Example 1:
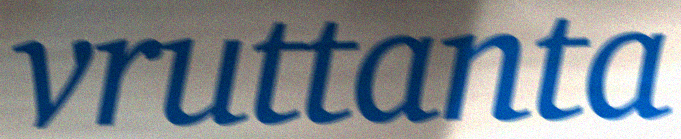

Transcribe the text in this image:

vruttanta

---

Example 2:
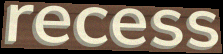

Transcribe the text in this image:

recess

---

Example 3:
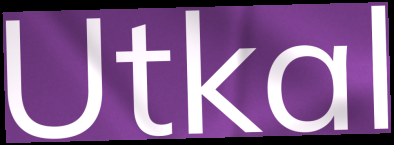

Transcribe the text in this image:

Utkal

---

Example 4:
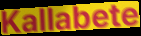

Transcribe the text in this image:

Kallabete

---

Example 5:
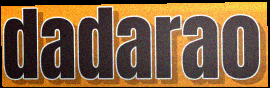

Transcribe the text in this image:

dadarao